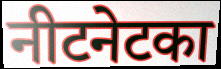
नीटनेटका